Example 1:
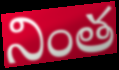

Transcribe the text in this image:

నింత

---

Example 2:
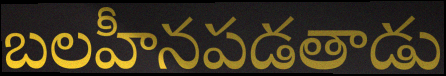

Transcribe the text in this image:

బలహీనపడతాడు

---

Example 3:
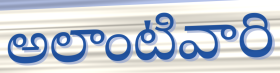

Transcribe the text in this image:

అలాంటివారి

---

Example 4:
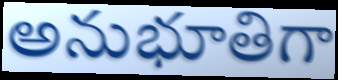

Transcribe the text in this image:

అనుభూతిగా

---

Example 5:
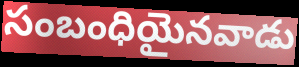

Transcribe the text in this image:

సంబంధియైనవాడు